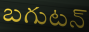
బగుటన్